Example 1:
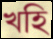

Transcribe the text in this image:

খহি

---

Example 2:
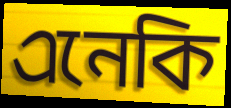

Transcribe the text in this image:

এনেকি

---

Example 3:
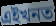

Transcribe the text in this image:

এইখনত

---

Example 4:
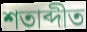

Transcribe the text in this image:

শতাব্দীত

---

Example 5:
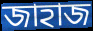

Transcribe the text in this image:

জাহাজ